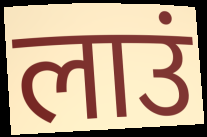
लाउं